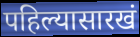
पहिल्यासारखं